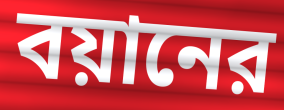
বয়ানের